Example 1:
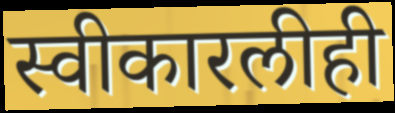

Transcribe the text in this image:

स्वीकारलीही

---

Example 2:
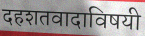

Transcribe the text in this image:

दहशतवादाविषयी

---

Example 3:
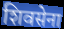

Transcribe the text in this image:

शिवसेना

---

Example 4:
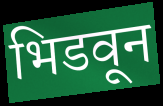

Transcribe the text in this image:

भिडवून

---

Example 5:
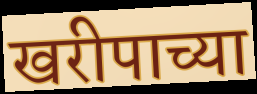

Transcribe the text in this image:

खरीपाच्या